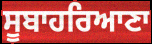
ਸੂਬਾਹਰਿਆਣਾ